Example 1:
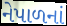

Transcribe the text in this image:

નેપાળનાં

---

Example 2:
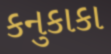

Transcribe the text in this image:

કનુકાકા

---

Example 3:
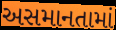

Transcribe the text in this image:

અસમાનતામાં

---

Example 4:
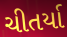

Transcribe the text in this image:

ચીતર્યા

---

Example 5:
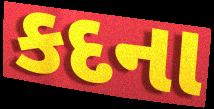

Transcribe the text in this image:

કદના